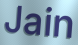
Jain